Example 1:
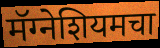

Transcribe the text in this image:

मॅग्नेशियमचा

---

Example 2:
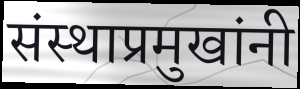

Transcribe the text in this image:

संस्थाप्रमुखांनी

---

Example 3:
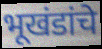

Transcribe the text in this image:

भूखंडांचे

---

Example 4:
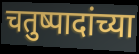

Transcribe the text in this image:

चतुष्पादांच्या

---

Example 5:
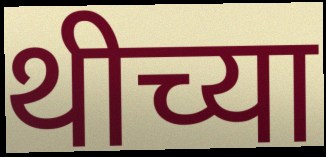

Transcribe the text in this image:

थीच्या